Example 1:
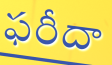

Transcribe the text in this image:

ఫరీదా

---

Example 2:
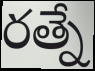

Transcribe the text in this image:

రత్నే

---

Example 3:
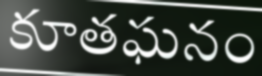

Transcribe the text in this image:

కూతఘనం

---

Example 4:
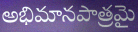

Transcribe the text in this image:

అభిమానపాత్రమై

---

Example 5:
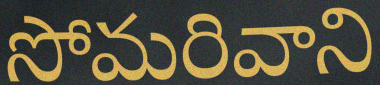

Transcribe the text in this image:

సోమరివాని